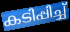
കടിപ്പിച്ച്